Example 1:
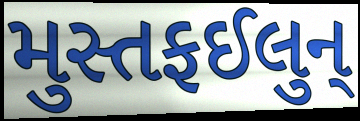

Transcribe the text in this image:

મુસ્તફઈલુન્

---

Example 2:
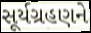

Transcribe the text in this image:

સૂર્યગ્રહણને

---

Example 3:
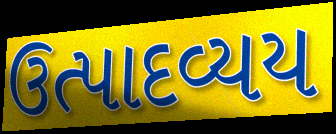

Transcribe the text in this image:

ઉત્પાદવ્યય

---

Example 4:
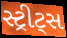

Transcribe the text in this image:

સ્ટ્રીટ્સ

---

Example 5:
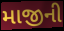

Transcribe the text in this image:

માજીની